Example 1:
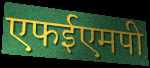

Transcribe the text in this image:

एफईएमपी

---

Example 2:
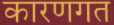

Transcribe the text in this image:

कारणगत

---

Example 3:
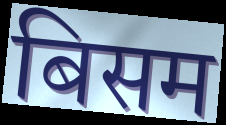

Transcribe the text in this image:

बिसम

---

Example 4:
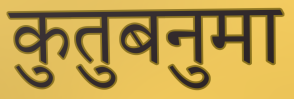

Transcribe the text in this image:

कुतुबनुमा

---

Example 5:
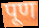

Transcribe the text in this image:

पूण